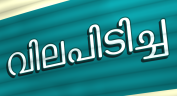
വിലപിടിച്ച